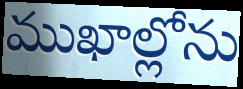
ముఖాల్లోను